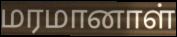
மரமானாள்